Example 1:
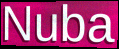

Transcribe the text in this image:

Nuba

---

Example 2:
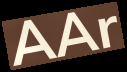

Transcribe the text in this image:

AAr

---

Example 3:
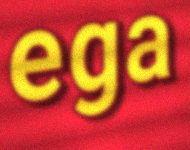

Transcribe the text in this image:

ega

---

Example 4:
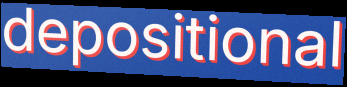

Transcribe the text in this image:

depositional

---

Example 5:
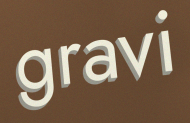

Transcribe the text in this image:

gravi